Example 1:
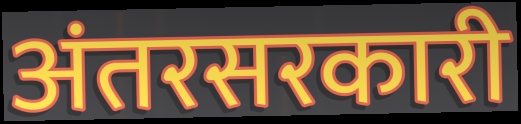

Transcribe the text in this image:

अंतरसरकारी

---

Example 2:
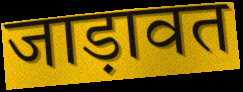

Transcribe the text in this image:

जाड़ावत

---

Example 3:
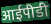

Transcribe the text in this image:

आईपीडी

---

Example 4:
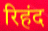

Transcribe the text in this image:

रिहंद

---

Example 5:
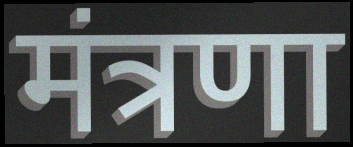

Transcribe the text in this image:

मंत्रणा